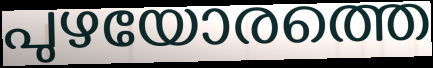
പുഴയോരത്തെ